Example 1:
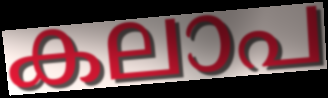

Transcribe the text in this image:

കലാപ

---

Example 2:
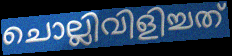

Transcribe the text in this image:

ചൊല്ലിവിളിച്ചത്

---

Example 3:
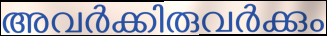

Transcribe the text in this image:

അവർക്കിരുവർക്കും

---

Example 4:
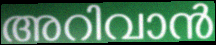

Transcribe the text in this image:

അറിവാൻ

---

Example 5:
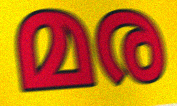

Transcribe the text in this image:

മര